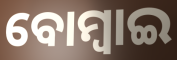
ବୋମ୍ୱାଇ